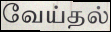
வேய்தல்